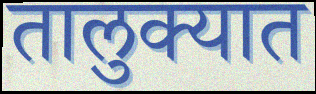
तालुक्यात